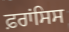
ਫ਼ਰਾਂਸਿਸ